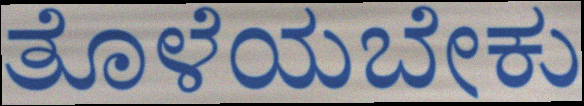
ತೊಳೆಯಬೇಕು